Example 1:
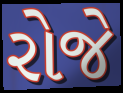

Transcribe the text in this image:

રોજે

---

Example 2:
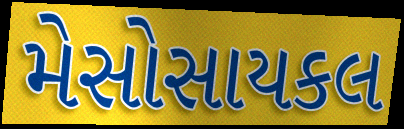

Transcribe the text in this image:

મેસોસાયકલ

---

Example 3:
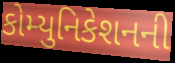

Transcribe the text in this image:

કોમ્યુનિકેશનની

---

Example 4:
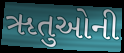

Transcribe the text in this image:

ૠતુઓની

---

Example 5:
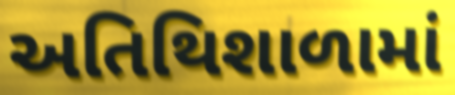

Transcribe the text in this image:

અતિથિશાળામાં